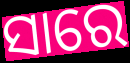
ସାରେ